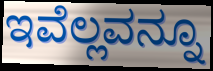
ಇವೆಲ್ಲವನ್ನೂ